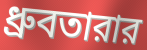
ধ্রুবতারার